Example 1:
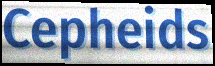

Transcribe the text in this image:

Cepheids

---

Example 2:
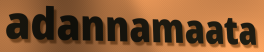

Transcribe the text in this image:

adannamaata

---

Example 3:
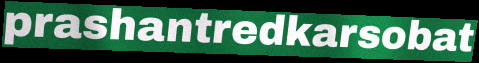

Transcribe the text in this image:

prashantredkarsobat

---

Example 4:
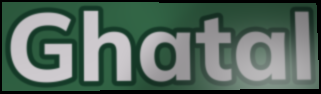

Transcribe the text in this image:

Ghatal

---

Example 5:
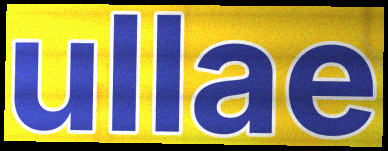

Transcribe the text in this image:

ullae